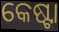
କେଷ୍ଟା